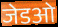
जेडओ